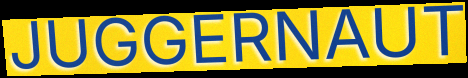
JUGGERNAUT